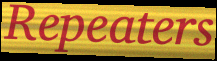
Repeaters